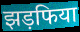
झड़फिया